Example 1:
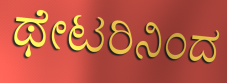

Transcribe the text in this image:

ಥೇಟರಿನಿಂದ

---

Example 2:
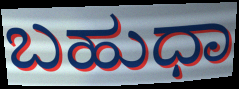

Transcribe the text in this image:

ಬಹುಧಾ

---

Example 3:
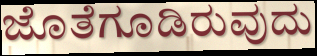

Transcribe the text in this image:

ಜೊತೆಗೂಡಿರುವುದು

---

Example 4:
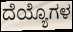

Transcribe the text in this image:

ದೆಯ್ಯೊಗಳ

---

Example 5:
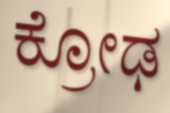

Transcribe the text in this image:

ಕ್ರೋಢ